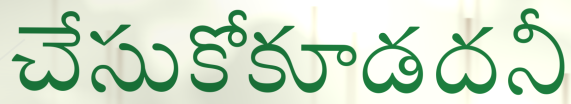
చేసుకోకూడదనీ